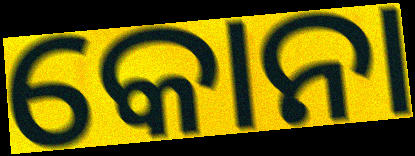
କୋନା